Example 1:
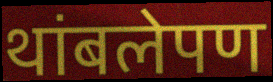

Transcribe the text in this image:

थांबलेपण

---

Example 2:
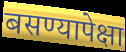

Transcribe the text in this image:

बसण्यापेक्षा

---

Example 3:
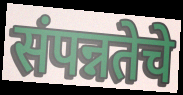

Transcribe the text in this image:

संपन्नतेचे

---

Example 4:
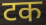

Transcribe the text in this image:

टक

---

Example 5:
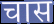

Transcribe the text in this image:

चास